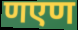
णएण